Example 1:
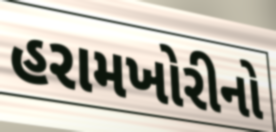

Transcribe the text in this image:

હરામખોરીનો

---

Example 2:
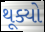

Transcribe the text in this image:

થૂક્યો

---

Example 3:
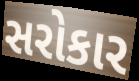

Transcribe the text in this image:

સરોકાર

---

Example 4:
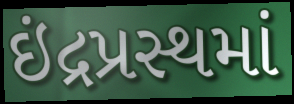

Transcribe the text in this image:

ઇંદ્રપ્રસ્થમાં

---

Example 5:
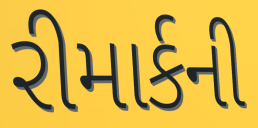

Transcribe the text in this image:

રીમાર્કની